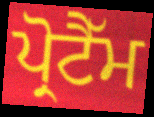
ਪ੍ਰੋਟੈੱਮ